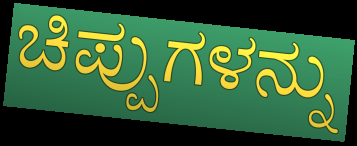
ಚಿಪ್ಪುಗಳನ್ನು